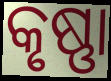
କୃଷ୍ଣା